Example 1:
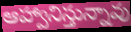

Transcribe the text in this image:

ఆహ్వానిస్తున్నావు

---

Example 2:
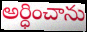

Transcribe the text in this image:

అర్ధించాను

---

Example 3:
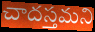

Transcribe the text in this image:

చాదస్తమని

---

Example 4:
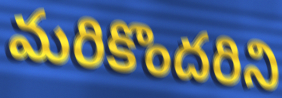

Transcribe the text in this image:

మరికొందరిని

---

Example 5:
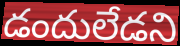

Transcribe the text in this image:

డందులేడని